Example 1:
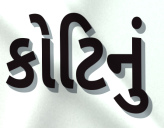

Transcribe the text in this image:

કોટિનું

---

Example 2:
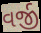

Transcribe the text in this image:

વર્જી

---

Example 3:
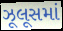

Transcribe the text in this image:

ઝૂલૂસમાં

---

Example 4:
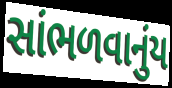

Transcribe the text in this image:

સાંભળવાનુંય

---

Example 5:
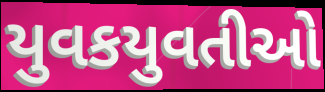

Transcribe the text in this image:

યુવકયુવતીઓ